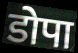
डोपा